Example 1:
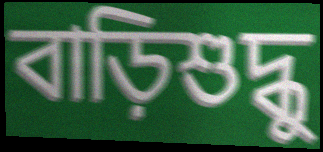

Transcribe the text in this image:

বাড়িশুদ্ধু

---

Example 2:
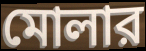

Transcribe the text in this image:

মোলার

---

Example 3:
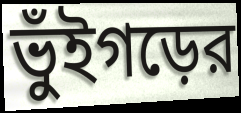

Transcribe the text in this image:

ভুঁইগড়ের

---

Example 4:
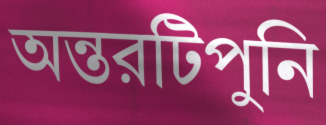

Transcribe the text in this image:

অন্তরটিপুনি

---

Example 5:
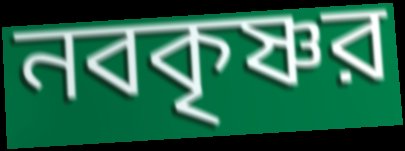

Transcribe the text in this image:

নবকৃষ্ণর